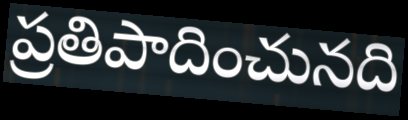
ప్రతిపాదించునది